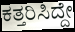
ಕತ್ತರಿಸಿದ್ದೇ